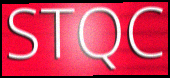
STQC